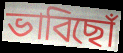
ভাবিছোঁ